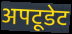
अपटूडेट